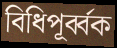
বিধিপূর্ব্বক